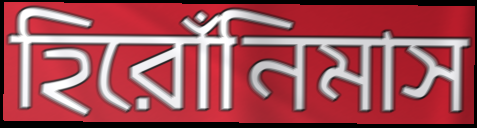
হিরোঁনিমাস